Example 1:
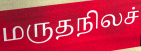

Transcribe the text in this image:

மருதநிலச்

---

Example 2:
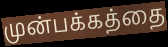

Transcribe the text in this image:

முன்பக்கத்தை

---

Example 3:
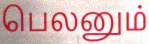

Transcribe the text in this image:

பெலனும்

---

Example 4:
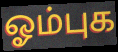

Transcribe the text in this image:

ஓம்புக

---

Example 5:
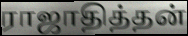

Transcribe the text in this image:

ராஜாதித்தன்